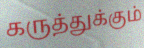
கருத்துக்கும்